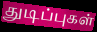
துடிப்புகள்